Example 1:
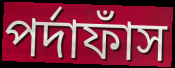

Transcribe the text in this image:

পর্দাফাঁস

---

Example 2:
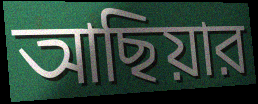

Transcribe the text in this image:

আছিয়ার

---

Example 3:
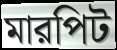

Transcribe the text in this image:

মারপিট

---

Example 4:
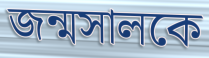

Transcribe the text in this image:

জন্মসালকে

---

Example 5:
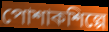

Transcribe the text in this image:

পোশাকশিল্পে